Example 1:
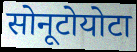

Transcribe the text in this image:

सोनूटोयोटा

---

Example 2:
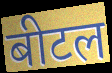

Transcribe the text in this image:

बीटल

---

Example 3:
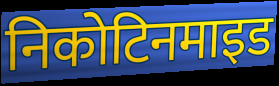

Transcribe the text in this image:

निकोटिनमाइड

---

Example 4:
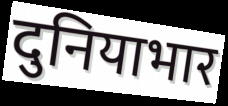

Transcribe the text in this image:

दुनियाभार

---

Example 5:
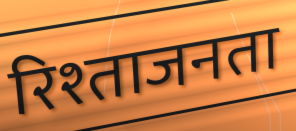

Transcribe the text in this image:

रिश्ताजनता